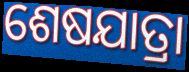
ଶେଷଯାତ୍ରା